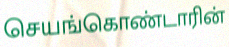
செயங்கொண்டாரின்